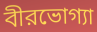
বীরভোগ্যা